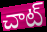
చాట్